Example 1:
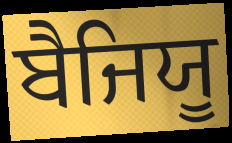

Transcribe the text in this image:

ਬੈਜਿਯੂ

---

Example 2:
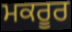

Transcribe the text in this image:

ਮਕਰੂਰ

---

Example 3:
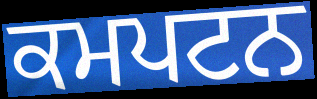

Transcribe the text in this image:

ਕਮਪਟਨ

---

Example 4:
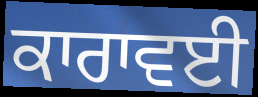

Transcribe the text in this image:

ਕਾਰਾਵਈ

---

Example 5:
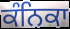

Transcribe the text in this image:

ਕੰਨਿਕਾ